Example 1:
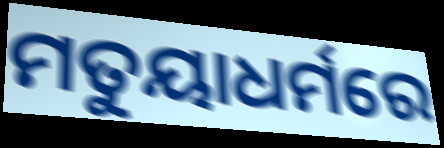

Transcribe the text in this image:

ମତୁୟାଧର୍ମରେ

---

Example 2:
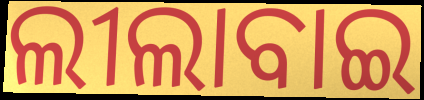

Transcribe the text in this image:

ଲୀଲାବାଇ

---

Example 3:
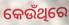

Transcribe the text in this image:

କେଉଁଥିରେ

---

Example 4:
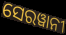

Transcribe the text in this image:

ସେରୱାନୀ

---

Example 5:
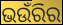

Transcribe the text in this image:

ଭଉଁରିର